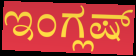
ಇಂಗ್ಲಷ್